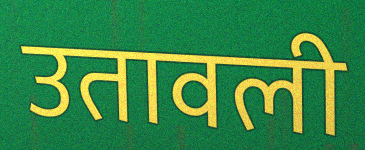
उतावली